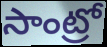
సాంట్రో